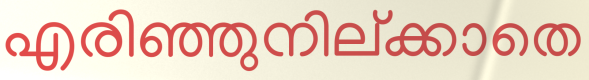
എരിഞ്ഞുനില്ക്കാതെ